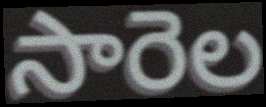
సారెల